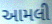
આમલી